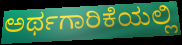
ಅರ್ಥಗಾರಿಕೆಯಲ್ಲಿ